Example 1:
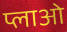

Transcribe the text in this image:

प्लाओ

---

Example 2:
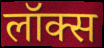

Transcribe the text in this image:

लॉक्स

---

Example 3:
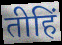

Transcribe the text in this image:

तीहिं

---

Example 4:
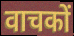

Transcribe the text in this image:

वाचकों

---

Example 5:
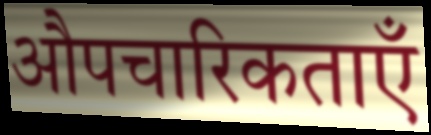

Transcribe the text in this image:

औपचारिकताएँ